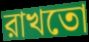
রাখতো